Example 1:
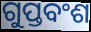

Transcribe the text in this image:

ଗୁପ୍ତବଂଶ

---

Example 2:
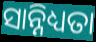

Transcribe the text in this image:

ସାନ୍ନିଧ୍ୟତା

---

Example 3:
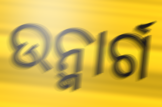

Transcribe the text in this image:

ଉନ୍ମାର୍ଗ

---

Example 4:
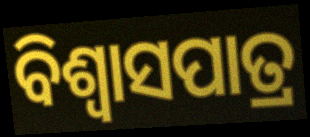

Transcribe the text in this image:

ବିଶ୍ୱାସପାତ୍ର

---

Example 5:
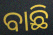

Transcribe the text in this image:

ବାଛି